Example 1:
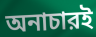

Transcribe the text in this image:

অনাচারই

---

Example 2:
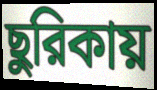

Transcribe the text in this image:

ছুরিকায়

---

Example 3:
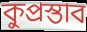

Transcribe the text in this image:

কুপ্রস্তাব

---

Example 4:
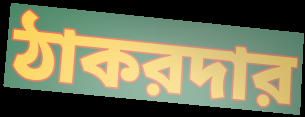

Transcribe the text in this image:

ঠাকরদার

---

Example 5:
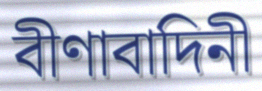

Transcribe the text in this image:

বীণাবাদিনী